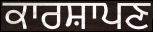
ਕਾਰਸ਼ਾਪਣ